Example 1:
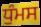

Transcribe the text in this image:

ਧੁੰਮਸ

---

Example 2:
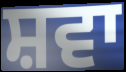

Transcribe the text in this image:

ਸ਼ਵਾ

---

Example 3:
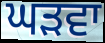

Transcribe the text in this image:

ਘੜਵਾ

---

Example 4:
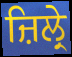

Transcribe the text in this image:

ਜ਼ਿਲ੍ਰੇ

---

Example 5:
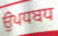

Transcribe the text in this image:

ਉਪਧਬਧ